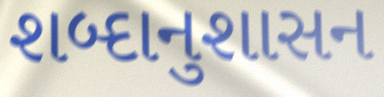
શબ્દાનુશાસન